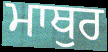
ਮਾਥੁਰ